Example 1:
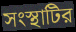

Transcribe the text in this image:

সংস্থাটির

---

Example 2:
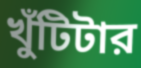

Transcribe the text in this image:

খুঁটিটার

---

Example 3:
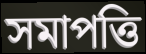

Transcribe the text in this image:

সমাপত্তি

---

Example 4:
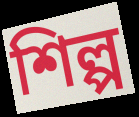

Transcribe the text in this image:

শিল্প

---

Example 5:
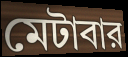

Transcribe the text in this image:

মেটাবার